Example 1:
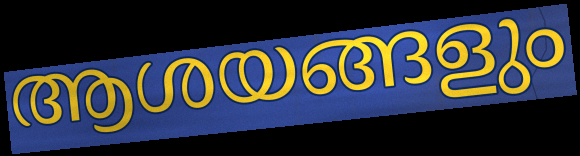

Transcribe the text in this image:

ആശയങ്ങളും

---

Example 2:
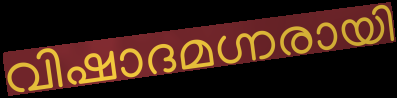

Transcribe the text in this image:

വിഷാദമഗ്നരായി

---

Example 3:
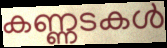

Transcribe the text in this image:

കണ്ണടകൾ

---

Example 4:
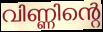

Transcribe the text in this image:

വിണ്ണിന്റെ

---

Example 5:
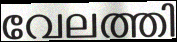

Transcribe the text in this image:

വേലത്തി